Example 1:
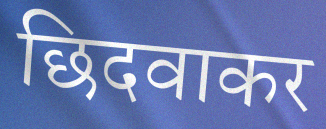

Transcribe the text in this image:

छिदवाकर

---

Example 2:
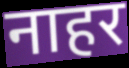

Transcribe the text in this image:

नाहर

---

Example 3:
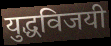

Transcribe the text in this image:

युद्धविजयी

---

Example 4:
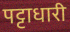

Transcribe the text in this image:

पट्टाधारी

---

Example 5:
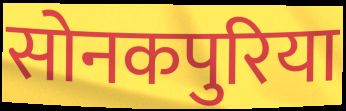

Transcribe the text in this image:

सोनकपुरिया